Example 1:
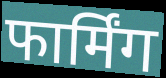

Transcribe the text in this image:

फार्मिंग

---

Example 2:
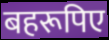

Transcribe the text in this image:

बहरूपिए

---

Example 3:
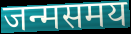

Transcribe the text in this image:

जन्मसमय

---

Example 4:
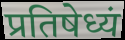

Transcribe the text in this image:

प्रतिषेध्यं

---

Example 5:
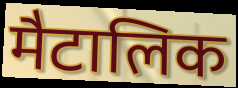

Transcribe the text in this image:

मैटालिक